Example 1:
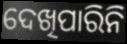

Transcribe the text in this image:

ଦେଖିପାରିନି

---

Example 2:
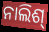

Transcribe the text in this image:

ନାଲିଶ୍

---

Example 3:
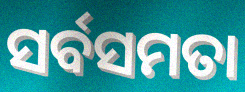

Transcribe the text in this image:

ସର୍ବସମତା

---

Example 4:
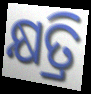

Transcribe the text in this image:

କ୍ଷତ୍ରି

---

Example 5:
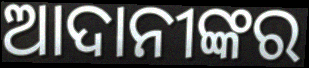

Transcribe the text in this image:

ଆଦାନୀଙ୍କର